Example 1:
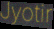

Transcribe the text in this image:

Jyotir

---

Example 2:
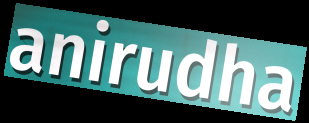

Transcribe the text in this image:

anirudha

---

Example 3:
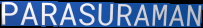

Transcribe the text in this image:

PARASURAMAN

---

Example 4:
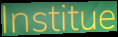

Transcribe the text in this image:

Institue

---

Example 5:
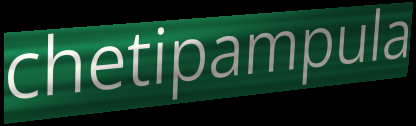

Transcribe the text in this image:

chetipampula